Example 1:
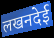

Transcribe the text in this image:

लखनदेई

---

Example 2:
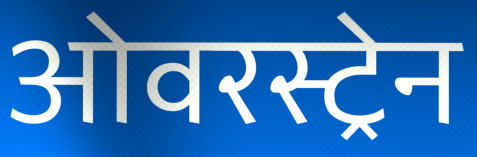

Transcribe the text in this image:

ओवरस्ट्रेन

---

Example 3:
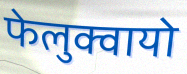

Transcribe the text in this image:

फेलुक्वायो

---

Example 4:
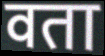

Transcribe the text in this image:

वता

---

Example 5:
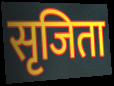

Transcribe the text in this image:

सृजिता